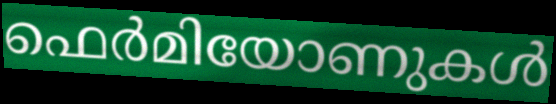
ഫെർമിയോണുകൾ